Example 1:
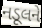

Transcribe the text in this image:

નડૂલને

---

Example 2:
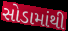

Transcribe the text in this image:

સોડામાંથી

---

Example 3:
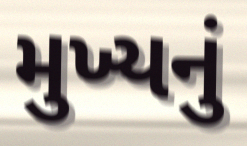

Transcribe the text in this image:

મુખ્યનું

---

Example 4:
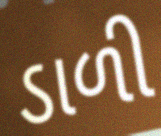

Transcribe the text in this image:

ડાળી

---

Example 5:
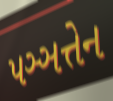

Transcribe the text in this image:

પઞ્ઞત્તેન